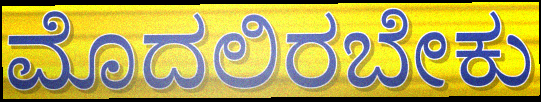
ಮೊದಲಿರಬೇಕು